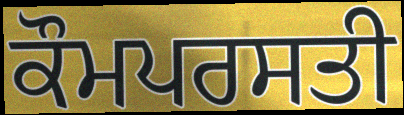
ਕੌਮਪਰਸਤੀ